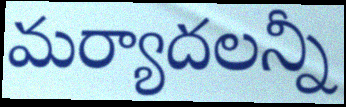
మర్యాదలన్నీ